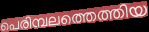
പെരിമ്പലത്തെത്തിയ